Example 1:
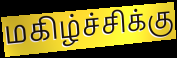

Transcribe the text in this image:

மகிழ்ச்சிக்கு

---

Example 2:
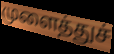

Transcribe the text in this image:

முளைத்துச்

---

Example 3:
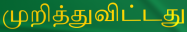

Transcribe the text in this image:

முறித்துவிட்டது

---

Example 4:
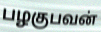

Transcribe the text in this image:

பழகுபவன்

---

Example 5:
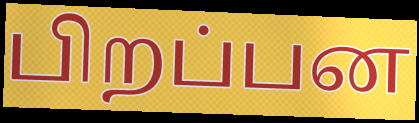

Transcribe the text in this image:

பிறப்பன